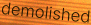
demolished